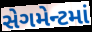
સેગમેન્ટમાં